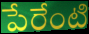
పేరేంటి